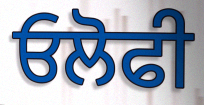
ਓਲੋਫੀ